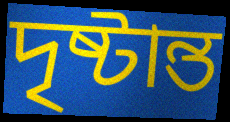
দৃষ্টান্ত